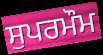
ਸੁਪਰਮੌਮ